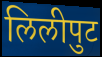
लिलीपुट